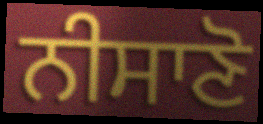
ਨੀਸਾਣੋ